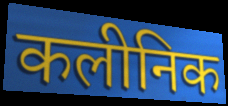
कलीनिक